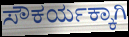
ಸೌಕರ್ಯಕ್ಕಾಗಿ